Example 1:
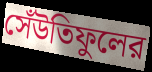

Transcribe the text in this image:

সেঁউতিফুলের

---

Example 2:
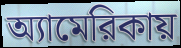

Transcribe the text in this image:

অ্যামেরিকায়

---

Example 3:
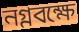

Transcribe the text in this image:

নগ্নবক্ষে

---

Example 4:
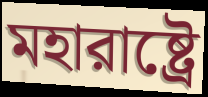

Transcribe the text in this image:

মহারাষ্ট্রে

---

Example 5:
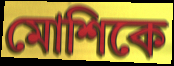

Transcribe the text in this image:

মোশিকে